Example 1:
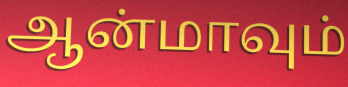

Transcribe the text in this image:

ஆன்மாவும்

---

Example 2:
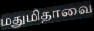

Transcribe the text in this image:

மதுமிதாவை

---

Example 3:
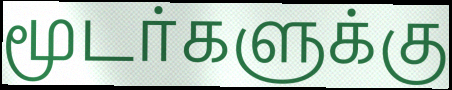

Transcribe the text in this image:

மூடர்களுக்கு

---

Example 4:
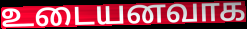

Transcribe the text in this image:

உடையனவாக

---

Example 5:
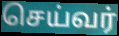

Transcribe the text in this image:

செய்வர்